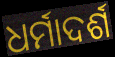
ଧର୍ମାଦର୍ଶ